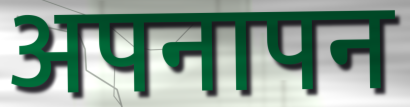
अपनापन